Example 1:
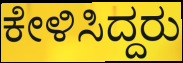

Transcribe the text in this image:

ಕೇಳಿಸಿದ್ದರು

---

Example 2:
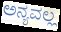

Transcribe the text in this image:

ಅನ್ಯವಲ್ಲ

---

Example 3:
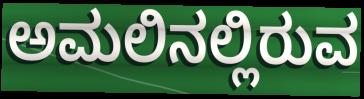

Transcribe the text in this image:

ಅಮಲಿನಲ್ಲಿರುವ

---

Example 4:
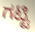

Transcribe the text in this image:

ಗಟ್ಟಿ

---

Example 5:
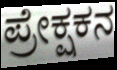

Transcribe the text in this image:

ಪ್ರೇಕ್ಷಕನ